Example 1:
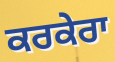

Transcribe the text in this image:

ਕਰਕੇਰਾ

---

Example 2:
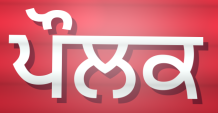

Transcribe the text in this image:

ਪੌਲਕ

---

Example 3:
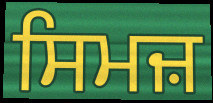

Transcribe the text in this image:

ਸਿਮਜ਼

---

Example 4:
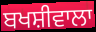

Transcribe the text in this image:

ਬਖਸ਼ੀਵਾਲਾ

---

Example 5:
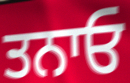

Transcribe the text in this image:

ਤਨਾਓ